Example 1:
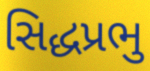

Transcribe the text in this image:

સિદ્ધપ્રભુ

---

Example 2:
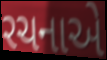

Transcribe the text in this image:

રચનાએ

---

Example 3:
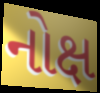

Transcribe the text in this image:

નોક્ષ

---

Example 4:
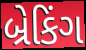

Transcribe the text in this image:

બ્રેકિંગ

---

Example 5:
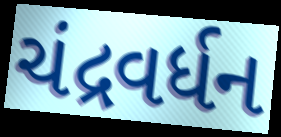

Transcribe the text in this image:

ચંદ્રવર્ધન